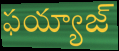
ఫయ్యాజ్